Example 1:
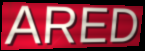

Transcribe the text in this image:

ARED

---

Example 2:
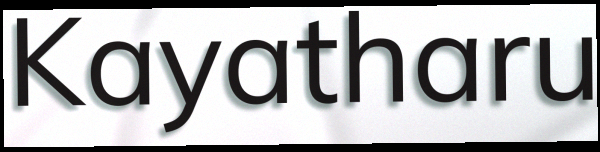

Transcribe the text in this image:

Kayatharu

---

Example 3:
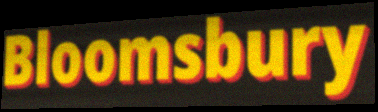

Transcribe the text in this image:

Bloomsbury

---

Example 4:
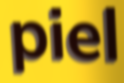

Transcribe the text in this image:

piel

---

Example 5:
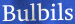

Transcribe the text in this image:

Bulbils